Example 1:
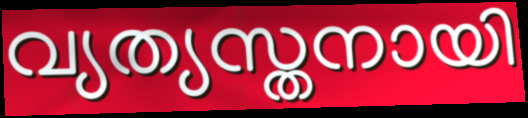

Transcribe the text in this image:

വ്യത്യസ്തനായി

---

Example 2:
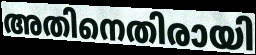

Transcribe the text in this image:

അതിനെതിരായി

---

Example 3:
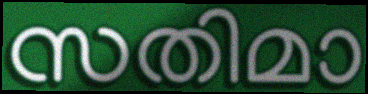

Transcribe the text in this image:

സതിമാ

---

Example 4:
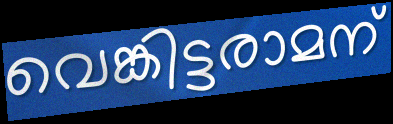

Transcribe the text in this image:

വെങ്കിട്ടരാമന്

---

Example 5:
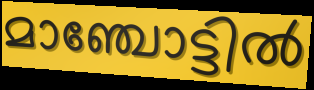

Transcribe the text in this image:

മാഞ്ചോട്ടിൽ